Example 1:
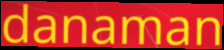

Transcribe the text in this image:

danaman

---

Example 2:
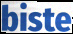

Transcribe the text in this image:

biste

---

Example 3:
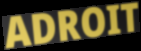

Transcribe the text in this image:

ADROIT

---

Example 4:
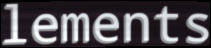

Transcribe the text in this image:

lements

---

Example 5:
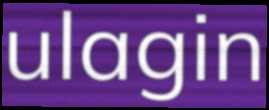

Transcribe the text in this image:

ulagin